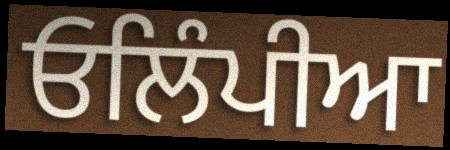
ਓਲਿੰਪੀਆ